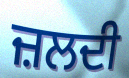
ਜ਼ਲਦੀ